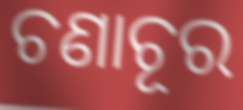
ଚଣାଚୂର